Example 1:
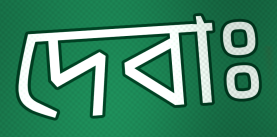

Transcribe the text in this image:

দেবাঃ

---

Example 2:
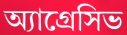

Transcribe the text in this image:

অ্যাগ্রেসিভ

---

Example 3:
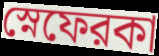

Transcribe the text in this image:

স্নেফেরকা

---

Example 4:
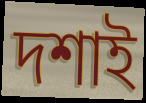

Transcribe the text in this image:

দশাই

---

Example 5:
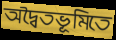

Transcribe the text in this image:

অদ্বৈতভূমিতে